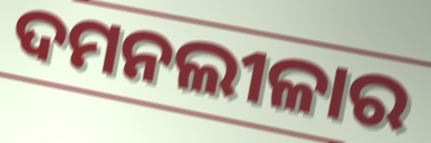
ଦମନଲୀଳାର